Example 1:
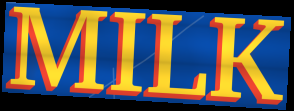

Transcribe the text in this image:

MILK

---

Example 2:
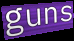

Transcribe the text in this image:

guns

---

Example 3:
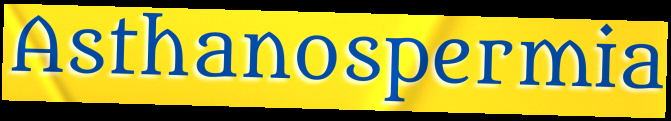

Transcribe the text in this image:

Asthanospermia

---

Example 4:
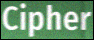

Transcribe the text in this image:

Cipher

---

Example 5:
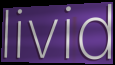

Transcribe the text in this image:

livid